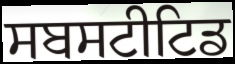
ਸਬਸਟੀਟਿਡ